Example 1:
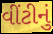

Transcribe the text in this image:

વીંટીનું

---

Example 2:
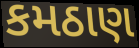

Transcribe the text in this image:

કમઠાણ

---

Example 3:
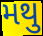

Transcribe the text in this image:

મથુ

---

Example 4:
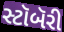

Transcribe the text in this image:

સ્ટૉબૅરી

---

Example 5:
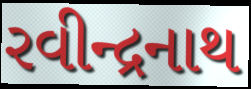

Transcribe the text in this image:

રવીન્દ્રનાથ